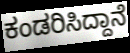
ಕಂಡರಿಸಿದ್ದಾನೆ